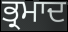
ਭ੍ਰਮਾਦ